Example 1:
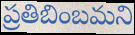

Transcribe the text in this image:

ప్రతిబింబమని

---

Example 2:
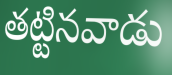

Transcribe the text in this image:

తట్టినవాడు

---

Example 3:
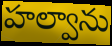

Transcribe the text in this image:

హల్వాను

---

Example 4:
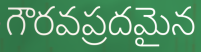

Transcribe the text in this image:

గౌరవప్రదమైన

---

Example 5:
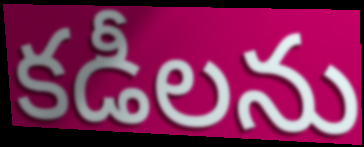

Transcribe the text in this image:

కడీలను